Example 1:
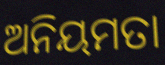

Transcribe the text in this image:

ଅନିୟମତା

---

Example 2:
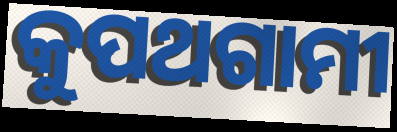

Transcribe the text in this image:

କୁପଥଗାମୀ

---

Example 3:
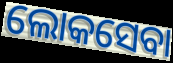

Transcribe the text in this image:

ଲୋକସେବା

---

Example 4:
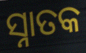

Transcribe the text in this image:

ସ୍ନାତକ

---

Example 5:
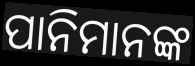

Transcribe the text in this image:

ପାନିମାନଙ୍କ